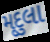
મૃદુલા